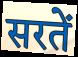
सरतें